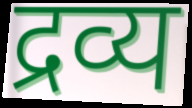
द्रव्य